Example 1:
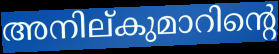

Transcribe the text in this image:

അനില്കുമാറിന്റെ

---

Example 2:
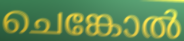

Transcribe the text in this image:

ചെങ്കോൽ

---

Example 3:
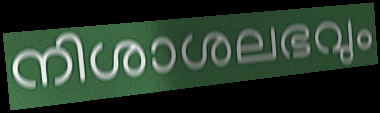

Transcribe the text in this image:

നിശാശലഭവും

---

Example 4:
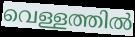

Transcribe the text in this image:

വെള്ളത്തിൽ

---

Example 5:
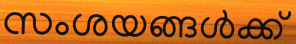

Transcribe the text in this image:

സംശയങ്ങൾക്ക്